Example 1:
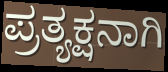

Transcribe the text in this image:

ಪ್ರತ್ಯಕ್ಷನಾಗಿ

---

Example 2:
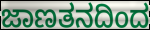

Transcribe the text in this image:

ಜಾಣತನದಿಂದ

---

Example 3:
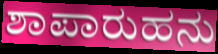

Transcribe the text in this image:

ಶಾಪಾರುಹನು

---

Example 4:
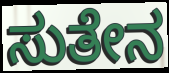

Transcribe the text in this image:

ಸುತೇನ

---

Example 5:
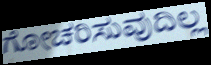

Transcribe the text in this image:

ಗೋಚರಿಸುವುದಿಲ್ಲ